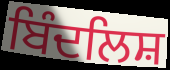
ਬਿੰਦਲਿਸ਼